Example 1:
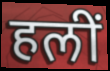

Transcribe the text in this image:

हलीं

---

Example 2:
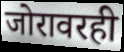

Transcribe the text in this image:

जोरावरही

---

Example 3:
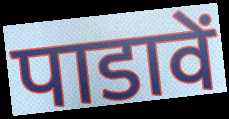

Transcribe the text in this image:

पाडावें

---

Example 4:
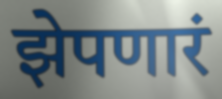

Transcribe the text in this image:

झेपणारं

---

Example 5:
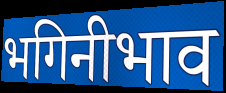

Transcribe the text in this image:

भगिनीभाव